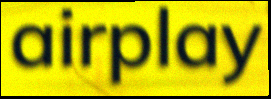
airplay